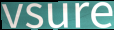
vsure